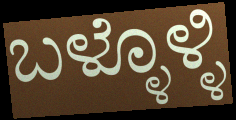
ಬಳ್ಳೊಳ್ಳಿ